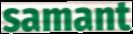
samant